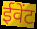
ईवेंट